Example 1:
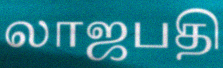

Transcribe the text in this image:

லாஜபதி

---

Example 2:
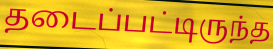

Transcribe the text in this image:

தடைப்பட்டிருந்த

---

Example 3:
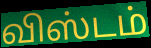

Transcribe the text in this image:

விஸ்டம்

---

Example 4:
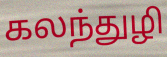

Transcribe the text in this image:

கலந்துழி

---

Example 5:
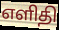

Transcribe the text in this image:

எளிதி